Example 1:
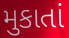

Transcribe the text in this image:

મુકાતાં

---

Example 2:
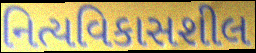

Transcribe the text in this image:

નિત્યવિકાસશીલ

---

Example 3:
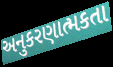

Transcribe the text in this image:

અનુકરણાત્મકતા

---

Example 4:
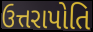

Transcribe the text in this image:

ઉત્તરાપોતિ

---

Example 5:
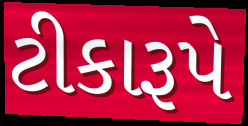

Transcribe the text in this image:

ટીકારૂપે